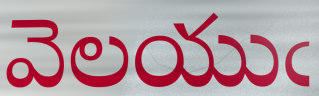
వెలయుఁ